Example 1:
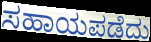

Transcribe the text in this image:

ಸಹಾಯಪಡೆದು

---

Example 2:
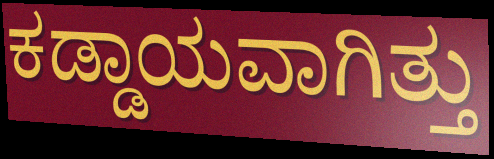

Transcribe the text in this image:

ಕಡ್ಡಾಯವಾಗಿತ್ತು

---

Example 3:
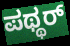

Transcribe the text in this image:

ಪಥ್ಥರ್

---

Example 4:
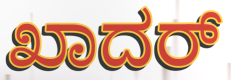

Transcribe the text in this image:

ಖಾದರ್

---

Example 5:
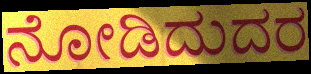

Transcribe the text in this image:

ನೋಡಿದುದರ